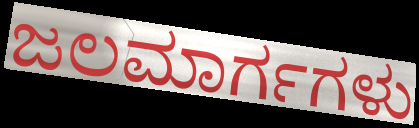
ಜಲಮಾರ್ಗಗಳು